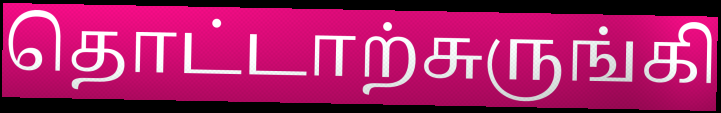
தொட்டாற்சுருங்கி